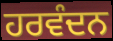
ਹਰਵੰਦਨ